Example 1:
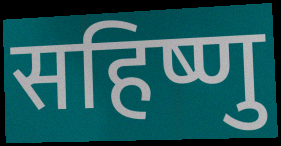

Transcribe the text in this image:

सहिष्णु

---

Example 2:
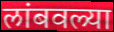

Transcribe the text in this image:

लांबवल्या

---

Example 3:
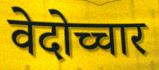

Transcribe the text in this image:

वेदोच्चार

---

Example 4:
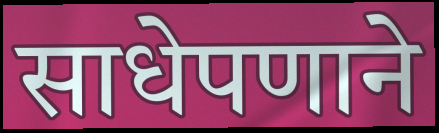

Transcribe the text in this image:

साधेपणाने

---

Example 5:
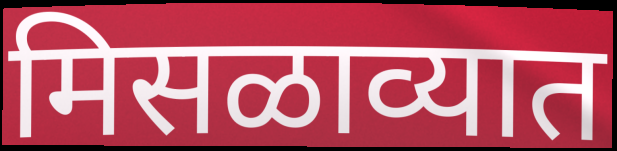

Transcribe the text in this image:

मिसळाव्यात